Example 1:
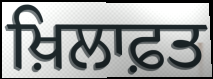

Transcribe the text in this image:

ਖ਼ਿਲਾਫ਼ਤ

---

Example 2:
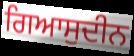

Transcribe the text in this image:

ਗਿਆਸੁਦੀਨ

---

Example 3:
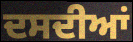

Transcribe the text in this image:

ਦਸਦੀਆਂ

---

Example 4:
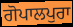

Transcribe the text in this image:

ਗੋਪਾਲਪੁਰਾ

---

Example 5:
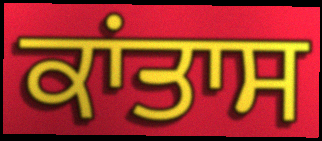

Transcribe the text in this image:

ਕਾਂਤਾਸ